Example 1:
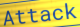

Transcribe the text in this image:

Attack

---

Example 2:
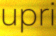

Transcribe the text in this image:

upri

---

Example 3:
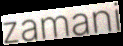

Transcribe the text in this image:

zamani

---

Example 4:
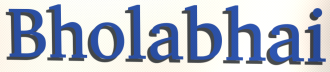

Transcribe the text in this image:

Bholabhai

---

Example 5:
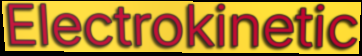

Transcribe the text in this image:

Electrokinetic